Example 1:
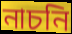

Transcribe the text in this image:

নাচনি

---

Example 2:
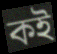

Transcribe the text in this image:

কই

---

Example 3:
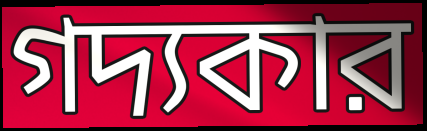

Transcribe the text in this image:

গদ্যকার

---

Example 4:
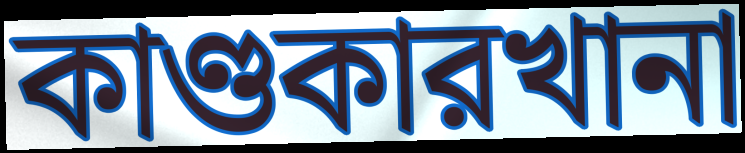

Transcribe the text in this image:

কাণ্ডকারখানা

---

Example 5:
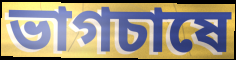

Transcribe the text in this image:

ভাগচাষে